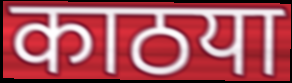
काठया